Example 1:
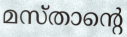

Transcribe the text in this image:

മസ്താന്റെ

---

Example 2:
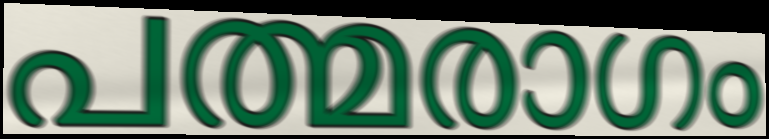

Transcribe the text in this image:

പത്മരാഗം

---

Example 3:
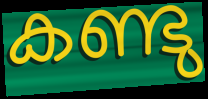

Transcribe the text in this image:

കണ്ടു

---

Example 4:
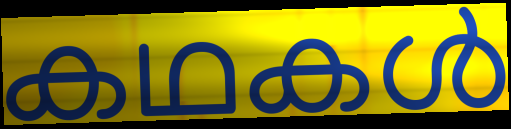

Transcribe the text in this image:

കഥകൾ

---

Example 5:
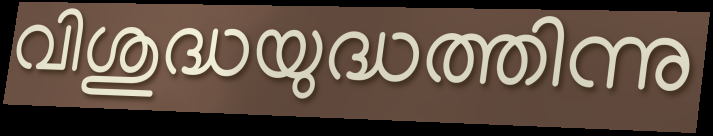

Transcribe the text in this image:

വിശുദ്ധയുദ്ധത്തിന്നു